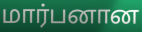
மார்பனான